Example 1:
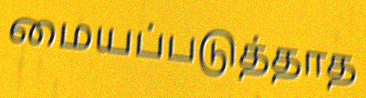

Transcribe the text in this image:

மையப்படுத்தாத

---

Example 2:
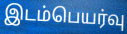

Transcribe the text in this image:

இடம்பெயர்வு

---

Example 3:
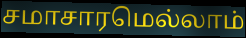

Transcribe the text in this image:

சமாசாரமெல்லாம்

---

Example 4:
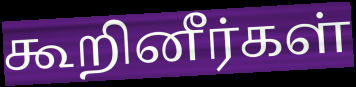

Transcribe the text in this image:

கூறினீர்கள்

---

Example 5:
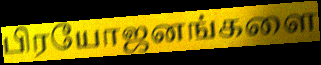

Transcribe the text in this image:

பிரயோஜனங்களை